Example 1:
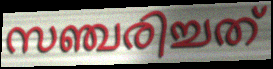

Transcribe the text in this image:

സഞ്ചരിച്ചത്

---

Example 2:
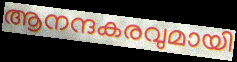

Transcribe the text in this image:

ആനന്ദകരവുമായി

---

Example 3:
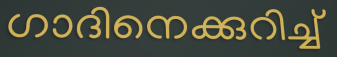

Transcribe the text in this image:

ഗാദിനെക്കുറിച്ച്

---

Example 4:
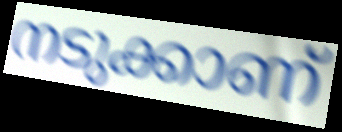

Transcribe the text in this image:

നടുക്കാണ്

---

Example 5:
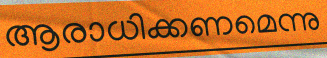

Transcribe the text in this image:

ആരാധിക്കണമെന്നു